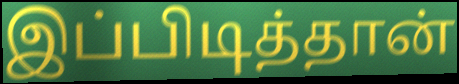
இப்பிடித்தான்